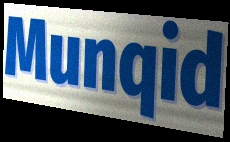
Munqid